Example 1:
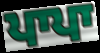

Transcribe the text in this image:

ਪਾਪਾ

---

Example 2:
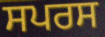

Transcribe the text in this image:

ਸਪਰਸ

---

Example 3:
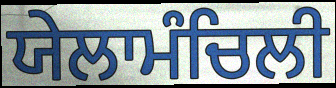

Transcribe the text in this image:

ਯੇਲਾਮੰਚਿਲੀ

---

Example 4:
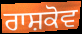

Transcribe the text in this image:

ਰਾਸ਼ਕੋਵ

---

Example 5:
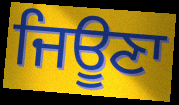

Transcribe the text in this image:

ਜਿਊਣਾ